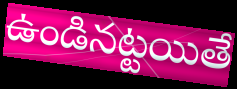
ఉండినట్టయితే